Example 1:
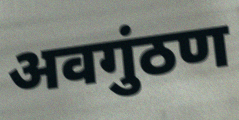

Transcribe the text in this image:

अवगुंठण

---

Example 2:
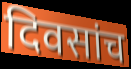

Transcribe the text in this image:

दिवसांच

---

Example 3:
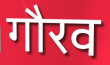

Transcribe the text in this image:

गौरव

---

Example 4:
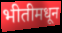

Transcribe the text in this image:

भीतीमधून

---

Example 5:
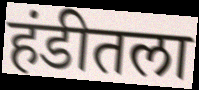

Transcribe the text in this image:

हंडीतला